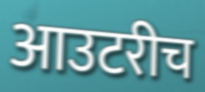
आउटरीच